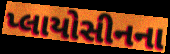
પ્લાયોસીનના